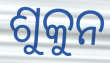
ଶୁକୁନ